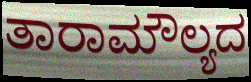
ತಾರಾಮೌಲ್ಯದ